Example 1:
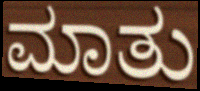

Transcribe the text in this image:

ಮಾತು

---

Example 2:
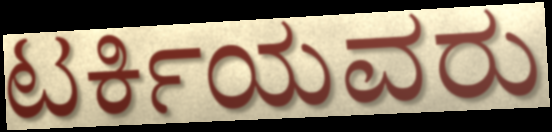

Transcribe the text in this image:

ಟರ್ಕಿಯವರು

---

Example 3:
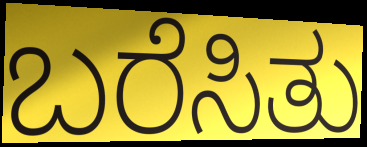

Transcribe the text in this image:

ಬರೆಸಿತು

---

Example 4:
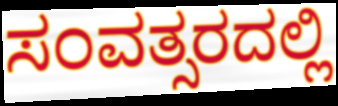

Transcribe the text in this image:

ಸಂವತ್ಸರದಲ್ಲಿ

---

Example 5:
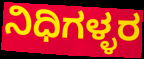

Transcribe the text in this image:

ನಿಧಿಗಳ್ಳರ